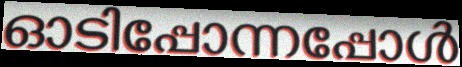
ഓടിപ്പോന്നപ്പോൾ